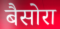
बैसोरा